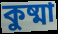
কুষ্মা